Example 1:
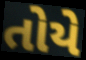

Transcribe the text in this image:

તોયે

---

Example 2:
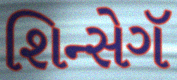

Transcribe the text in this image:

શિન્સેગૅ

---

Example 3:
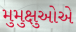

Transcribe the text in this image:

મુમુક્ષુઓએ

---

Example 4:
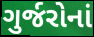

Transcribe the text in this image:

ગુર્જરોનાં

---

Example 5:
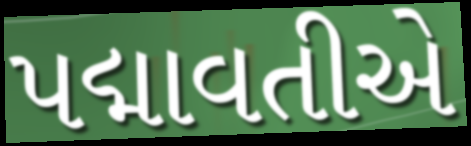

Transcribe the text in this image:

પદ્માવતીએ